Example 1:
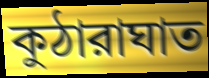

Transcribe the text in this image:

কুঠারাঘাত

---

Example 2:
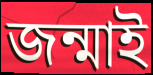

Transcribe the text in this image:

জন্মাই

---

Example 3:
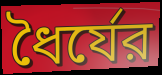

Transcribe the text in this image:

ধৈর্যের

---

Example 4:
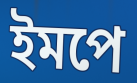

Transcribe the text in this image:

ইমপে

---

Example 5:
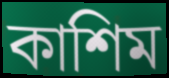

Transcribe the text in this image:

কাশিম